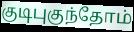
குடிபுகுந்தோம்